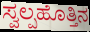
ಸ್ವಲ್ಪಹೊತ್ತಿನ